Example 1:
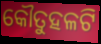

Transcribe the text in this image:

କୌତୁହଳଟି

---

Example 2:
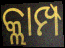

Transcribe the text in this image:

କ୍ଲାମ୍ପ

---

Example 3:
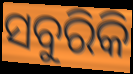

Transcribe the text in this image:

ସବୁରିକି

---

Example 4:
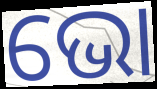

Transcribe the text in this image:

ଭୋ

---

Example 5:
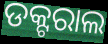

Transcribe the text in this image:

ଡକ୍ଟରାଲ